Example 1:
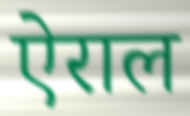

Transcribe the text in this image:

ऐराल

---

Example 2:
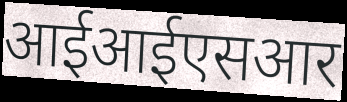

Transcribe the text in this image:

आईआईएसआर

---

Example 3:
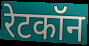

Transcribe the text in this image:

रेटकॉन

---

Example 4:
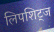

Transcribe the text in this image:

लिपशिट्ज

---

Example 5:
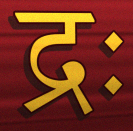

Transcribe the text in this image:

द्रः